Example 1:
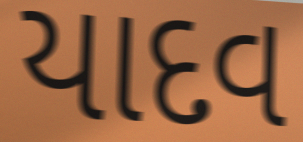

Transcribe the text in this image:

યાદવ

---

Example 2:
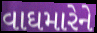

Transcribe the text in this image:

વાઘમારેને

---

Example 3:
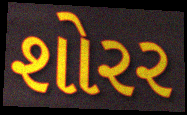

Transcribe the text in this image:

શોરર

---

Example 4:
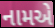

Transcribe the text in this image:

નામએ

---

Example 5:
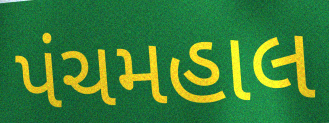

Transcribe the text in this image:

પંચમહાલ